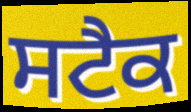
ਸਟੈਕ